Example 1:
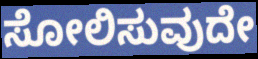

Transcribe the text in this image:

ಸೋಲಿಸುವುದೇ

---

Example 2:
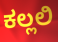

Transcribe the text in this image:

ಕಲ್ಲಲಿ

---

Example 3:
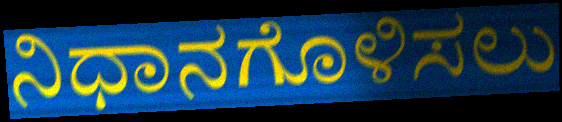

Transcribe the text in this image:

ನಿಧಾನಗೊಳಿಸಲು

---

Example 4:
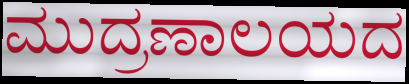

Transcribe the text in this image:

ಮುದ್ರಣಾಲಯದ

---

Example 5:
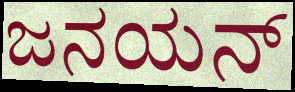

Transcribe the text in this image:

ಜನಯನ್